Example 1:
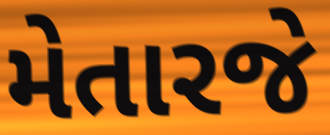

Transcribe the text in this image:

મેતારજે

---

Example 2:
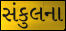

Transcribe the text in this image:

સંકુલના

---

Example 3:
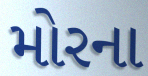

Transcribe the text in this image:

મોરના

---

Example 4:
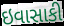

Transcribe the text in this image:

ઇવાસાકી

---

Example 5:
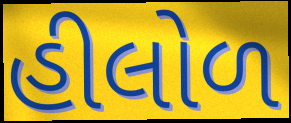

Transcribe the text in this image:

હીલોળ